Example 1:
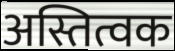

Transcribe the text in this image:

अस्तित्वक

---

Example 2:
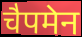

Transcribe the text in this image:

चैपमेन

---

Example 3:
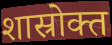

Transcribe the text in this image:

शास्रोक्त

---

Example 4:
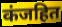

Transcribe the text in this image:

कंजहित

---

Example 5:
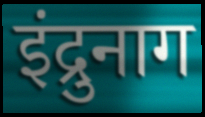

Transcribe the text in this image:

इंद्रुनाग